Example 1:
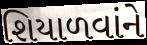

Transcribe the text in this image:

શિયાળવાંને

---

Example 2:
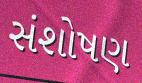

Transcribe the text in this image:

સંશોષણ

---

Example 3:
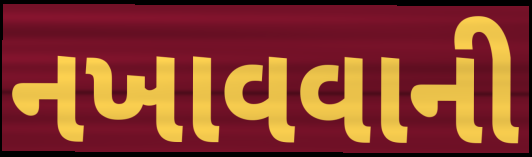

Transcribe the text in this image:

નખાવવાની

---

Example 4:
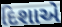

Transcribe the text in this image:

દિશાએ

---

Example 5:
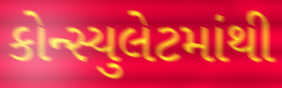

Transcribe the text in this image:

કોન્સ્યુલેટમાંથી